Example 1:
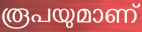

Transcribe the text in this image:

രൂപയുമാണ്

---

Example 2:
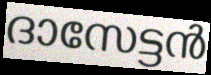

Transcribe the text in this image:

ദാസേട്ടൻ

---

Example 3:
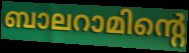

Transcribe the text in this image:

ബാലറാമിന്റെ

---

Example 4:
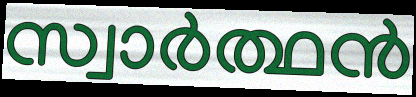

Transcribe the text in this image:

സ്വാർത്ഥൻ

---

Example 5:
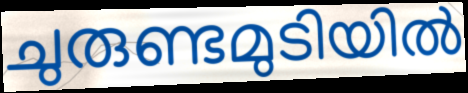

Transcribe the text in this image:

ചുരുണ്ടമുടിയിൽ